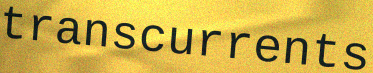
transcurrents